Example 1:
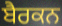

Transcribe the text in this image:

ਬੈਰਕਨ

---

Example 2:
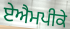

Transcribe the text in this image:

ਏਐਮਪੀਕੇ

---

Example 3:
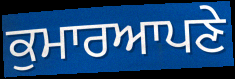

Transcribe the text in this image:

ਕੁਮਾਰਆਪਣੇ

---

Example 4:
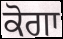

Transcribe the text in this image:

ਕੋਗਾ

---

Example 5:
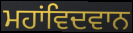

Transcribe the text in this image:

ਮਹਾਂਵਿਦਵਾਨ